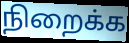
நிறைக்க